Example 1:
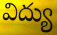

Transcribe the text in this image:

విద్యు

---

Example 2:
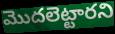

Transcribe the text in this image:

మొదలెట్టారని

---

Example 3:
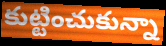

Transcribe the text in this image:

కుట్టించుకున్నా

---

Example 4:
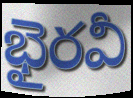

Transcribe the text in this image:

భైరవీ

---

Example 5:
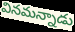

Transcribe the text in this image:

వినమన్నాడు